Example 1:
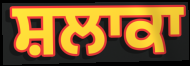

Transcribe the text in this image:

ਸ਼ਲਾਕਾ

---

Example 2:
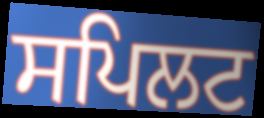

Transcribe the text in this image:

ਸਪਿਲਟ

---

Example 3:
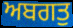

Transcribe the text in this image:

ਅਬਗਤੁ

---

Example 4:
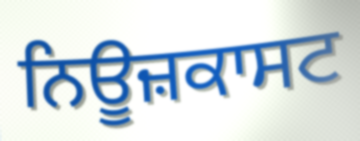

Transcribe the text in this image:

ਨਿਊਜ਼ਕਾਸਟ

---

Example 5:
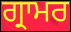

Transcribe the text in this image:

ਗ੍ਰਾਮਰ